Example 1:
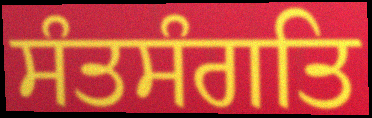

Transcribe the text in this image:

ਸੰਤਸੰਗਤਿ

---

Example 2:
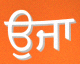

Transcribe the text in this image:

ਉਜਾ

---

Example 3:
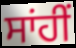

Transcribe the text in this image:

ਸਾਂਹੀਂ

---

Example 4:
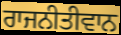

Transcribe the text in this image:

ਰਾਜਨੀਤੀਵਾਨ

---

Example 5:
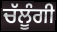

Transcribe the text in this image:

ਚੱਲੂੰਗੀ